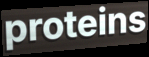
proteins